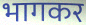
भागकर